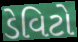
ડેવિટો